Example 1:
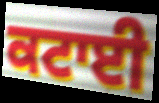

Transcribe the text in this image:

ਕਟਾਈ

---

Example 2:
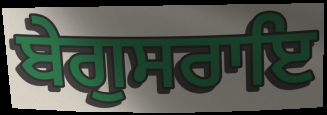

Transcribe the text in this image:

ਬੇਗੁਸਰਾਇ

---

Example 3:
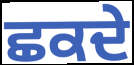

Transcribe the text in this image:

ਛਕਦੇ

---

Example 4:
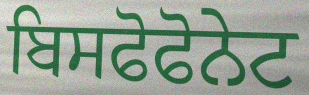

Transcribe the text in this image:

ਬਿਸਫੋਫੋਨੇਟ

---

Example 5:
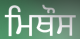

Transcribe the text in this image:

ਮਿਥੌਸ